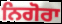
ਨਿਗੋਰਾ